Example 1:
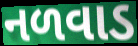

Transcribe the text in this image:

નળવાડ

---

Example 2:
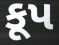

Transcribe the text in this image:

કૂપ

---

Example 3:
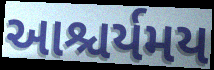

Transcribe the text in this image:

આશ્ચર્યમય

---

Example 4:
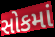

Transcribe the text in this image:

સોકમાં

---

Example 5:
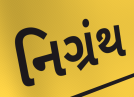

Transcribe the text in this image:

નિગ્રંથ